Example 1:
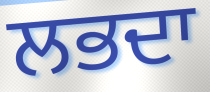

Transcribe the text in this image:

ਲਭਦਾ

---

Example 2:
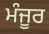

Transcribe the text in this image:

ਮੰਜੂਰ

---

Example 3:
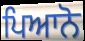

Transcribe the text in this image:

ਪਿਆਨੋ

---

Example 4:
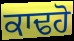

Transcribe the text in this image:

ਕਾਢਹੋ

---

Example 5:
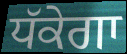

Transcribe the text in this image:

ਧੱਕੇਗਾ